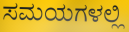
ಸಮಯಗಳಲ್ಲಿ